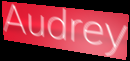
Audrey